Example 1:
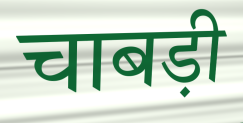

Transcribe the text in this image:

चाबड़ी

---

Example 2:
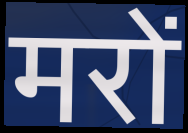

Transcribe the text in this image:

मरों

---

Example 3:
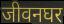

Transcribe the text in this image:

जीवनघर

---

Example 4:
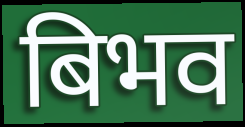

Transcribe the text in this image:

बिभव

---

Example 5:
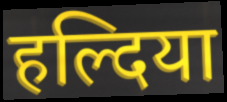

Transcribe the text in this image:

हल्दिया